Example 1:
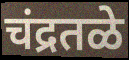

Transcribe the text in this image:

चंद्रतळे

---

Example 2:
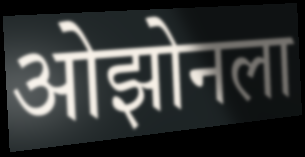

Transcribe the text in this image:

ओझोनला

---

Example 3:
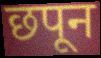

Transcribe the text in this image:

छपून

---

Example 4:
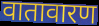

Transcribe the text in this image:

वातावारण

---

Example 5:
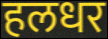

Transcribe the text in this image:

हलधर